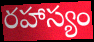
రహాస్యం